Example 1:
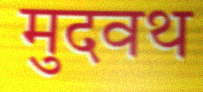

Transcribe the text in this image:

मुदवथ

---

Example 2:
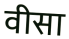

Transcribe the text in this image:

वीसा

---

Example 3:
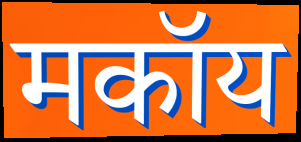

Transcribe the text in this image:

मकॉय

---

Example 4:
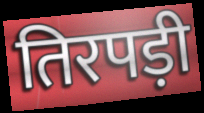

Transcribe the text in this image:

तिरपड़ी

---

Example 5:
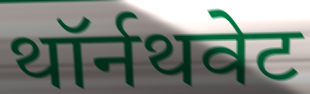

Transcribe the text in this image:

थॉर्नथवेट